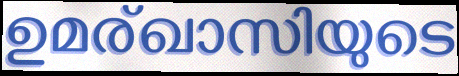
ഉമര്ഖാസിയുടെ